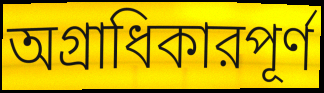
অগ্রাধিকারপূর্ণ